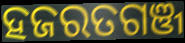
ହଜରତଗଞ୍ଜ